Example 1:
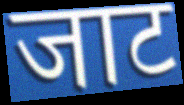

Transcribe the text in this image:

जाट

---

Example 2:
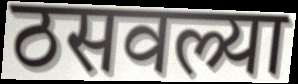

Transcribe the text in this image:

ठसवल्या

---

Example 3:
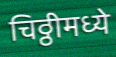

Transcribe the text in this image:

चिठ्ठीमध्ये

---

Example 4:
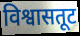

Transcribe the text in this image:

विश्वासतूट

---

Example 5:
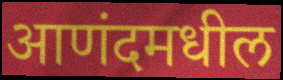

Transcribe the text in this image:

आणंदमधील